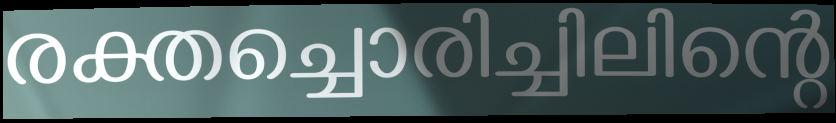
രക്തച്ചൊരിച്ചിലിന്റെ